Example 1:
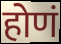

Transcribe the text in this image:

होणं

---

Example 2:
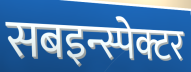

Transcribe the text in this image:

सबइन्स्पेक्टर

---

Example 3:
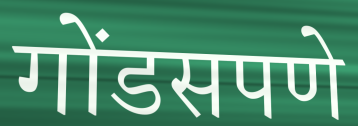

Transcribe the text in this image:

गोंडसपणे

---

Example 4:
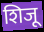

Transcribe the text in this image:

शिजू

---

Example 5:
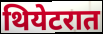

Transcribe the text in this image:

थियेटरात